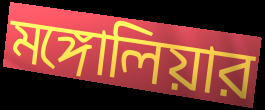
মঙ্গোলিয়ার